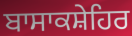
ਬਾਸਾਕਸ਼ੇਹਿਰ